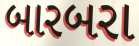
બારબરા